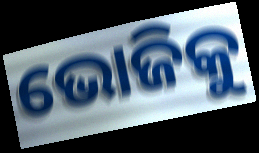
ଭୋଜିକୁ